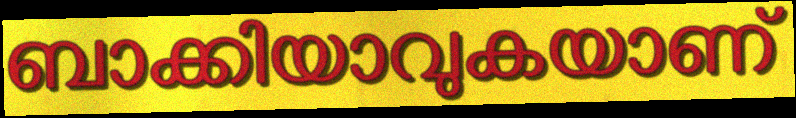
ബാക്കിയാവുകയാണ്